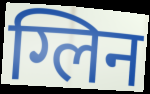
ग्लिन